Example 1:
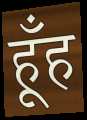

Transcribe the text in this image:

हूँह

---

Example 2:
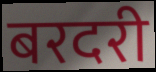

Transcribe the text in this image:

बरदरी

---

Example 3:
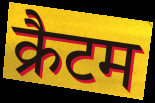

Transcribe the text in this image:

क्रैटम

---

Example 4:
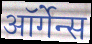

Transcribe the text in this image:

ऑर्गेन्स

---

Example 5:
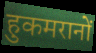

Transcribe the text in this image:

हुकमरानों